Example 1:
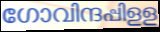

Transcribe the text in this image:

ഗോവിന്ദപ്പിളള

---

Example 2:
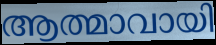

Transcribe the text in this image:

ആത്മാവായി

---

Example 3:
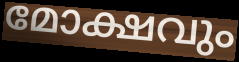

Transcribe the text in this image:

മോക്ഷവും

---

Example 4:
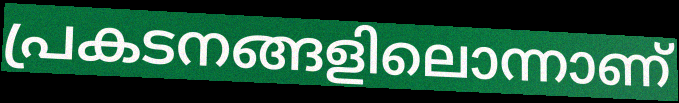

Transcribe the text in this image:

പ്രകടനങ്ങളിലൊന്നാണ്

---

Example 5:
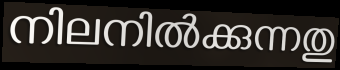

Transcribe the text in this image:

നിലനിൽക്കുന്നതു